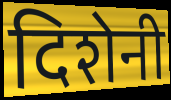
दिशेनी